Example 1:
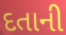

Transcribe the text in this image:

દતાની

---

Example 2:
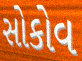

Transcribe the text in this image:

સોકોવ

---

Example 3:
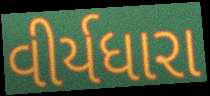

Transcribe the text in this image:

વીર્યધારા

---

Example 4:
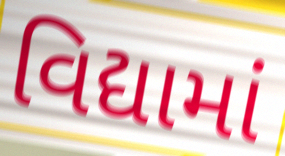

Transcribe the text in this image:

વિદ્યામાં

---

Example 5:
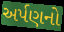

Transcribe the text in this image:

અર્પણનો